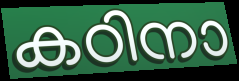
കഠിനാ